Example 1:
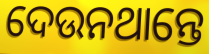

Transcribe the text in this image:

ଦେଉନଥାନ୍ତେ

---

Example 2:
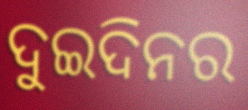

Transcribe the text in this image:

ଦୁଇଦିନର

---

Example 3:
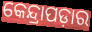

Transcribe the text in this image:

କେନ୍ଦ୍ରାପଡ଼ାର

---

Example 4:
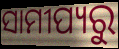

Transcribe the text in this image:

ସାମୀପ୍ୟରୁ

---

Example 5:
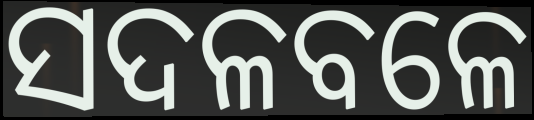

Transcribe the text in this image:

ସଦଳବଳେ